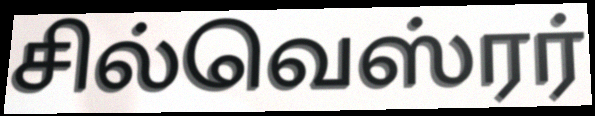
சில்வெஸ்ரர்